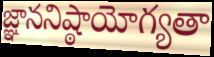
జ్ఞాననిష్ఠాయోగ్యతా